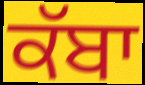
ਕੱਬਾ